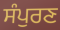
ਸੰਪੁਰਣ